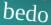
bedo